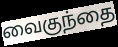
வைகுந்தை